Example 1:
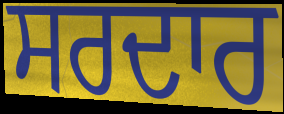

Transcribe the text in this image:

ਸਰਦਾਰ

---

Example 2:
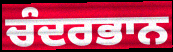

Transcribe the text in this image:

ਚੰਦਰਭਾਨ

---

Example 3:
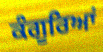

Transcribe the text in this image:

ਕੰਗੂਰਿਆਂ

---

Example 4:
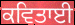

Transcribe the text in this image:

ਕਵਿਤਾਈ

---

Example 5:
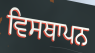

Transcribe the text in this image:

ਵਿਸਥਾਪਨ